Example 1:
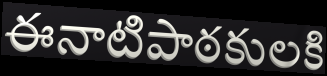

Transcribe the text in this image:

ఈనాటిపాఠకులకి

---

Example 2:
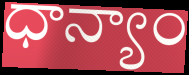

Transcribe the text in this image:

ధాన్యాం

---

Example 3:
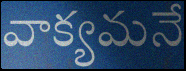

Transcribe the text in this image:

వాక్యమనే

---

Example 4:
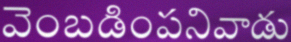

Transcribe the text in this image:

వెంబడింపనివాడు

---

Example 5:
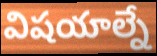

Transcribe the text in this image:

విషయాల్నే